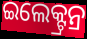
ଇଲେକ୍ଟ୍ରନ୍ର